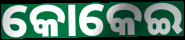
କୋକେଇ